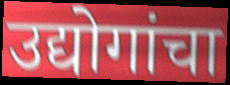
उद्योगांचा